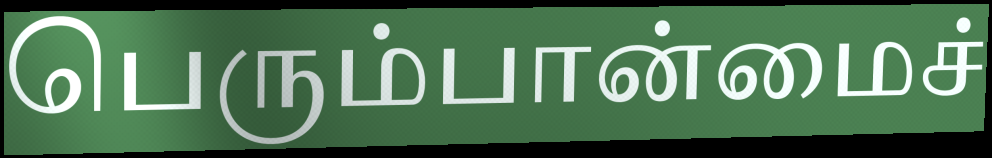
பெரும்பான்மைச்